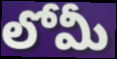
లోమీ